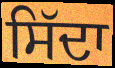
ਸਿੱਦਾ